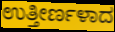
ಉತ್ತೀರ್ಣಳಾದ